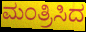
ಮಂತ್ರಿಸಿದ